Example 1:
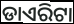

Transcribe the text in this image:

ଡାଏରିଟା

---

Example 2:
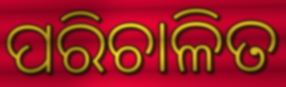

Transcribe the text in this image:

ପରିଚାଳିତ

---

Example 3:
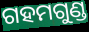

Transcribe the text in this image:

ଗହମଗୁଣ୍ଡ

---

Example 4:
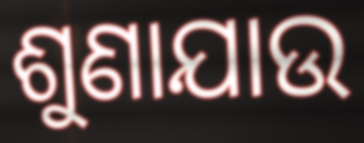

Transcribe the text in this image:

ଶୁଣାଯାଉ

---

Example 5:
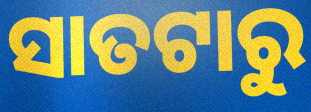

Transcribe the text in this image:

ସାତଟାରୁ